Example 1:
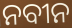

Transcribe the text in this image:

ନବୀନ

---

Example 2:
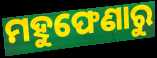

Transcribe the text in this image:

ମହୁଫେଣାରୁ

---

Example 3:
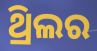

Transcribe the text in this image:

ଥ୍ରିଲର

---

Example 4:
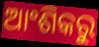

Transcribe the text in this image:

ଆଂଶିକରୁ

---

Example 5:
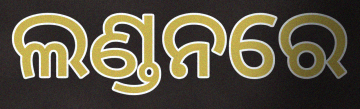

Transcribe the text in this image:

ଲଣ୍ଡନରେ